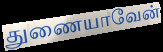
துணையாவேன்